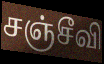
சஞ்சீவி